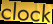
clock